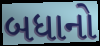
બધાનો